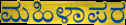
ಮಹಿಳಾಪರ